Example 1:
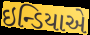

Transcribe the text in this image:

ઇન્ડિયાએ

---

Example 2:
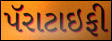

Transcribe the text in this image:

પૅરાટાઇફી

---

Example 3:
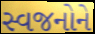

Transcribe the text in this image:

સ્વજનોને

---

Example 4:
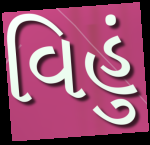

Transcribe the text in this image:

વિહું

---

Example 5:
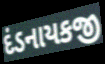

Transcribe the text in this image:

દંડનાયકજી